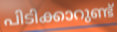
പിടിക്കാറുണ്ട്